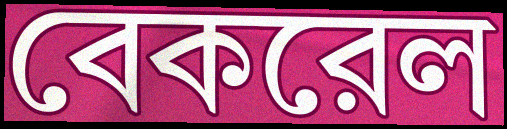
বেকরেল